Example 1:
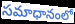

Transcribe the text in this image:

సమాధానంలో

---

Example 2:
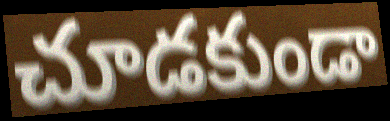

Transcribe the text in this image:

చూడకుండా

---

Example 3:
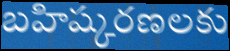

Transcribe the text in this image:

బహిష్కరణలకు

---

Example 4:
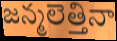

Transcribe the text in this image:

జన్మలెత్తినా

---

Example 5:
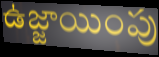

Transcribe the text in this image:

ఉజ్జాయింపు